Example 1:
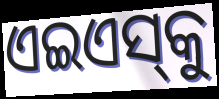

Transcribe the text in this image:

ଏଇଏସ୍‌କୁ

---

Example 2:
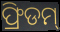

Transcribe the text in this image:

ଫ୍ରିଡମ୍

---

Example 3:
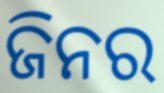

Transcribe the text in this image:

ଜିନର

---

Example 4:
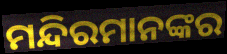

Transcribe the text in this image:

ମନ୍ଦିରମାନଙ୍କର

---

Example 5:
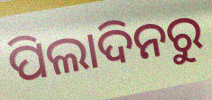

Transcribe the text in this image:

ପିଲାଦିନରୁ